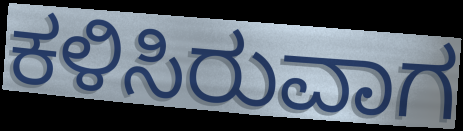
ಕಳಿಸಿರುವಾಗ